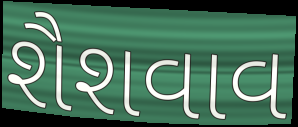
શૈશવાવ